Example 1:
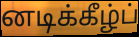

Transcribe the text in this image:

னடிக்கீழ்ப்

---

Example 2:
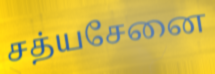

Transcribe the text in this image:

சத்யசேனை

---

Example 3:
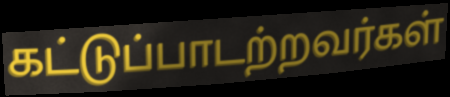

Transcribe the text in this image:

கட்டுப்பாடற்றவர்கள்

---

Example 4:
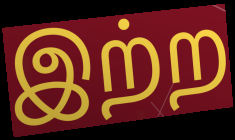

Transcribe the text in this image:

இற்ற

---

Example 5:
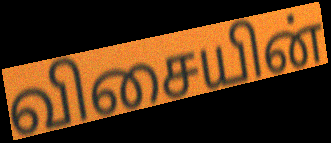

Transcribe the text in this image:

விசையின்